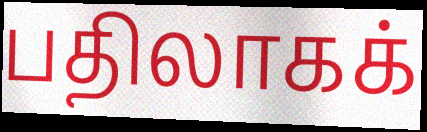
பதிலாகக்